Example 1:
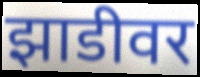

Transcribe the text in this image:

झाडीवर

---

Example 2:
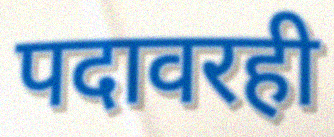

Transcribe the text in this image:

पदावरही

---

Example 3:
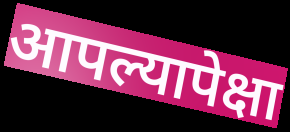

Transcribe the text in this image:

आपल्यापेक्षा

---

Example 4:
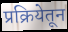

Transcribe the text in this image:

प्रक्रियेतून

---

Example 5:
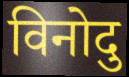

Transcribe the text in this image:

विनोदु